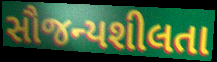
સૌજન્યશીલતા